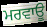
ਮਰਵਾਊ